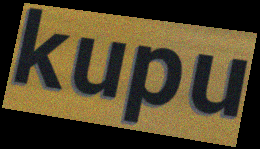
kupu